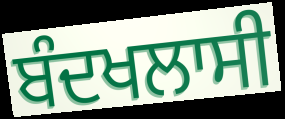
ਬੰਦਖਲਾਸੀ